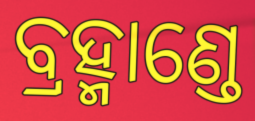
ବ୍ରହ୍ମାଣ୍ଡେ